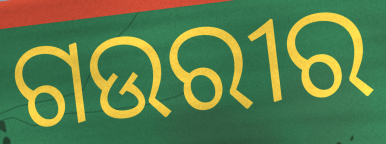
ଗଉରୀର